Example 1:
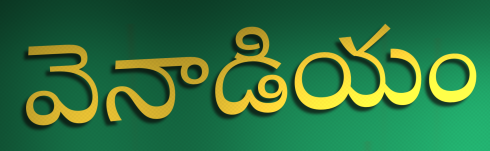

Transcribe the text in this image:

వెనాడియం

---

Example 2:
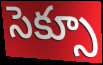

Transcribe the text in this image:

సెక్సూ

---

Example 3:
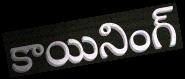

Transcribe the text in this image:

కాయినింగ్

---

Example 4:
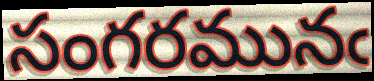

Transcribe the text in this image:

సంగరమునఁ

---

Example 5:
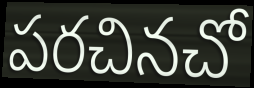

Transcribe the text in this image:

పరచినచో